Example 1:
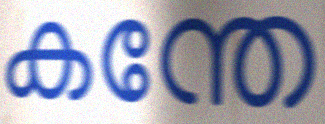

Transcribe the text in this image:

കന്തേ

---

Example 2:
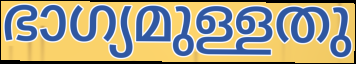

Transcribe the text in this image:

ഭാഗ്യമുള്ളതു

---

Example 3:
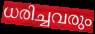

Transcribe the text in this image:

ധരിച്ചവരും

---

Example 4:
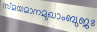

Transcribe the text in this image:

സ്മയമാനമുഖാംബുജഃ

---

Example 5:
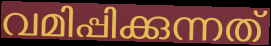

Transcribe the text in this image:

വമിപ്പിക്കുന്നത്